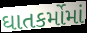
ઘાતકર્મોમાં